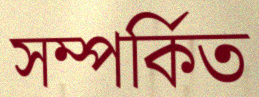
সম্পৰ্কিত